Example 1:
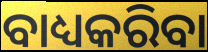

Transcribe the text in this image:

ବାଧ୍ୟକରିବା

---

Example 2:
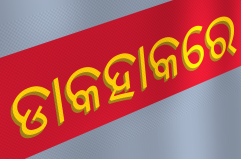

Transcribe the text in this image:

ଡାକହାକରେ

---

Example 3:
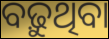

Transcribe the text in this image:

ବଢ଼ୁଥିବା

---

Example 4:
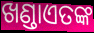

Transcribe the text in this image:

ଖଣ୍ଡାଏତଙ୍କ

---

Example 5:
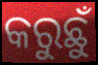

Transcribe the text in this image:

କରୁଛୁଁ